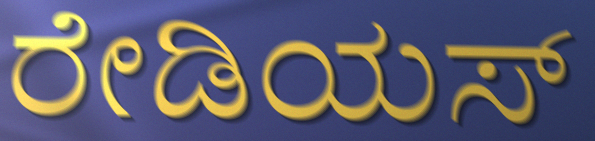
ರೇಡಿಯಸ್